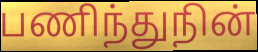
பணிந்துநின்